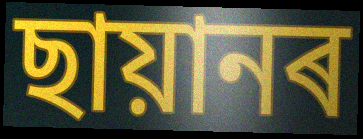
ছায়ানৰ